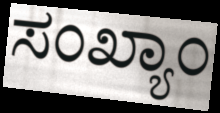
ಸಂಖ್ಯಾಂ